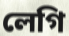
লেগি